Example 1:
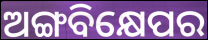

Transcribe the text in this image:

ଅଙ୍ଗବିକ୍ଷେପର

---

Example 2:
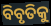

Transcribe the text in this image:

ବିବୃତିକୁ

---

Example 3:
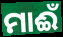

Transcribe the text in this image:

ମାଈଁ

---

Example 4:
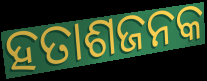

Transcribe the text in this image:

ହତାଶଜନକ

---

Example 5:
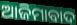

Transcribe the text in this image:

ଆଜିମାବାଦ